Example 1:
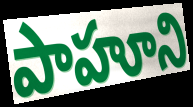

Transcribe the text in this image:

పాహూని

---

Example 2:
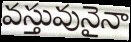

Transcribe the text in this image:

వస్తువునైనా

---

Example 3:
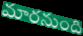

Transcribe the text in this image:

మారనుంది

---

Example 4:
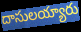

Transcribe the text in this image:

దాసులయ్యారు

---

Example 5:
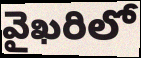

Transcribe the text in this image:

వైఖరిలో